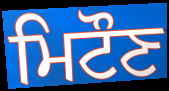
ਮਿਟੌਣ